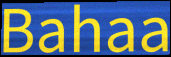
Bahaa